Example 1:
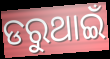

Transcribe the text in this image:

ଡରୁଥାଇଁ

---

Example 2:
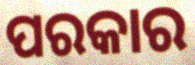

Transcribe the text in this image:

ପରକାର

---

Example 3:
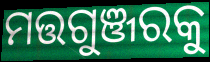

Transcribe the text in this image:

ମତ୍ତଗୁଞ୍ଜରକୁ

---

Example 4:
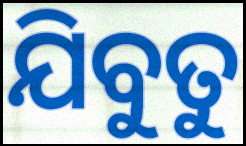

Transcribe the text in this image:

ଯିବୁତୁ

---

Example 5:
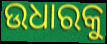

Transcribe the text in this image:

ଉଧାରକୁ